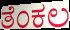
ತೆಂಕಲ